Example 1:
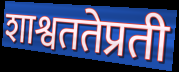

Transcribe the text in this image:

शाश्वततेप्रती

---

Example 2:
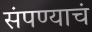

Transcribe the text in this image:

संपण्याचं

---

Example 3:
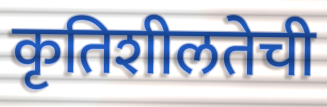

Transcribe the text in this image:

कृतिशीलतेची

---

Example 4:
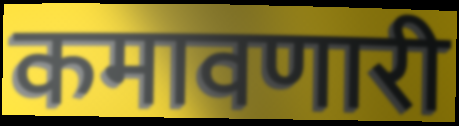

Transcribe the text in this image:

कमावणारी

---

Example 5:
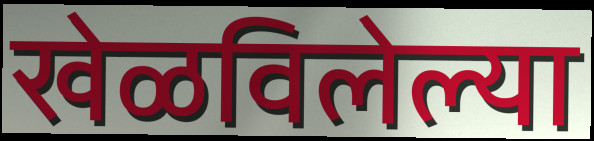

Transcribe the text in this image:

खेळविलेल्या